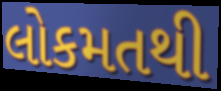
લોકમતથી